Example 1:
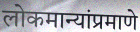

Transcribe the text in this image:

लोकमान्यांप्रमाणे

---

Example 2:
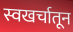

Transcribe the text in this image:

स्वखर्चातून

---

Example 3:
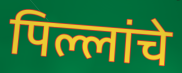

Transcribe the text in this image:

पिल्लांचे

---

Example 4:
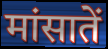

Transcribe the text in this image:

मांसातें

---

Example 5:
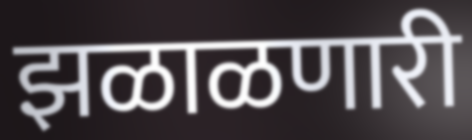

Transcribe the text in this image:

झळाळणारी